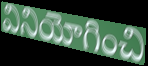
వినియోగించి